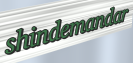
shindemandar